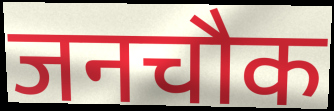
जनचौक